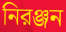
নিরঞ্জন